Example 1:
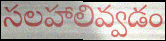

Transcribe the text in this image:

సలహాలివ్వడం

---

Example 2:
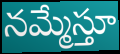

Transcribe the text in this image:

నమ్మేస్తూ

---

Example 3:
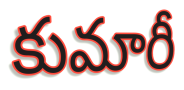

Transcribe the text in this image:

కుమారీ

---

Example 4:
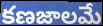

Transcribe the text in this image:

కణజాలమే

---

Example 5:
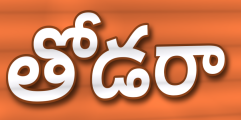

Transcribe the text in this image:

తోడరా